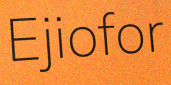
Ejiofor